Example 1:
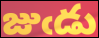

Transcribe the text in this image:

జుఁడు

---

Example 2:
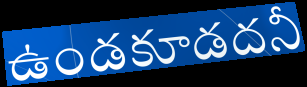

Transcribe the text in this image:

ఉండకూడదనీ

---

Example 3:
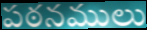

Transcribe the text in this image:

పఠనములు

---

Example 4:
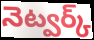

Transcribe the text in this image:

నెట్వర్క్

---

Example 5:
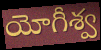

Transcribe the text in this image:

యోగీశ్వ